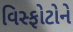
વિસ્ફોટોને